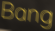
Bang